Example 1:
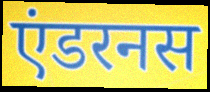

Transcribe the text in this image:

एंडरनस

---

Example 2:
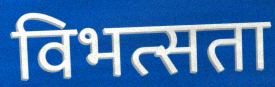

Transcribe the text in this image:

विभत्सता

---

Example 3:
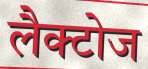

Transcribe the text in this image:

लैक्‍टोज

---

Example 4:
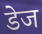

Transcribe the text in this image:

डेज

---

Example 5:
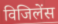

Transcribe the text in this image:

विजिलेंस